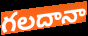
గలదానా